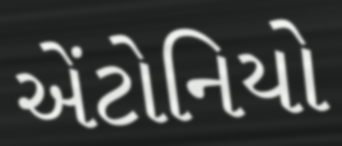
એંટોનિયો